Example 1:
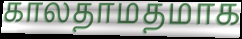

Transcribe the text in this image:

காலதாமதமாக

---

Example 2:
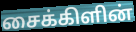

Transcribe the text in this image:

சைக்கிளின்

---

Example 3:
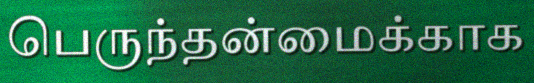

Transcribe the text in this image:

பெருந்தன்மைக்காக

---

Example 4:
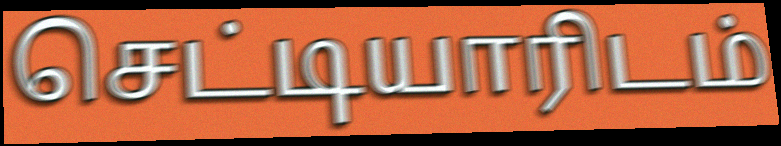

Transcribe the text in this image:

செட்டியாரிடம்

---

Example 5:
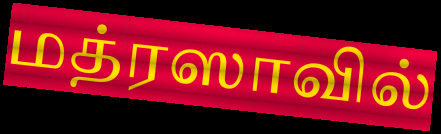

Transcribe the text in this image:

மத்ரஸாவில்